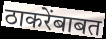
ठाकरेंबाबत